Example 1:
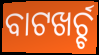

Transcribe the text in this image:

ବାଟଖର୍ଚ୍ଚ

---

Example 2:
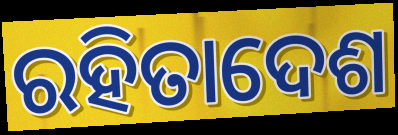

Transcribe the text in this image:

ରହିତାଦେଶ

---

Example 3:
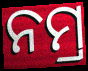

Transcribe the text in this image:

ନମ୍ର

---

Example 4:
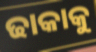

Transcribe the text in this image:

ଢାକାକୁ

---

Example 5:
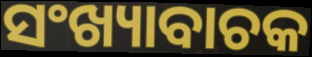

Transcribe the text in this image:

ସଂଖ୍ୟାବାଚକ